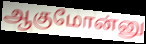
ஆகுமோன்னு